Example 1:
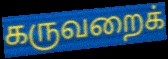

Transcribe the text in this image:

கருவறைக்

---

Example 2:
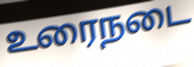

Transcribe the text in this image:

உரைநடை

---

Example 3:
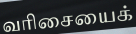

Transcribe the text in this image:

வரிசையைக்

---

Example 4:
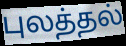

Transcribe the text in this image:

புலத்தல்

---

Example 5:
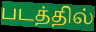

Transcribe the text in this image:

படத்தில்